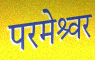
परमेश्र्वर